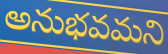
అనుభవమని